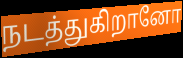
நடத்துகிறானோ